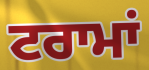
ਟਰਾਮਾਂ